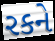
રકને